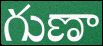
గుణా